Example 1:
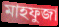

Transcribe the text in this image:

মাহফুজা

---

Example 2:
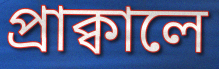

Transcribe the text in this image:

প্রাক্বালে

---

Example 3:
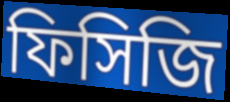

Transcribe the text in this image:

ফিসিজি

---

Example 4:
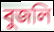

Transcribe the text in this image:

বুজলি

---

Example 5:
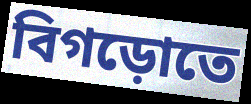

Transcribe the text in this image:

বিগড়োতে